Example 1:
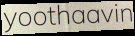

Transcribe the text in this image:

yoothaavin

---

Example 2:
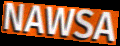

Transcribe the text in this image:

NAWSA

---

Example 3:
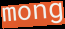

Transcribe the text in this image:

mong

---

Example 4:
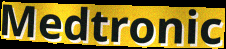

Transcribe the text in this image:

Medtronic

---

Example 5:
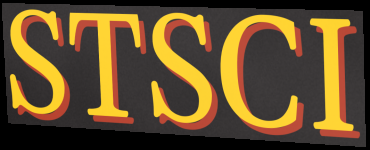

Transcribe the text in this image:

STSCI